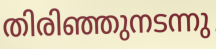
തിരിഞ്ഞുനടന്നു